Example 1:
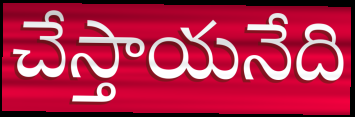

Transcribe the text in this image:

చేస్తాయనేది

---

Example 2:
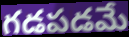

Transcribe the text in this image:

గడపడమే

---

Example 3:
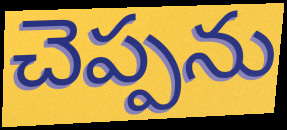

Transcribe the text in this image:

చెప్పను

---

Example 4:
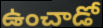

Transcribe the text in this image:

ఉంచాడో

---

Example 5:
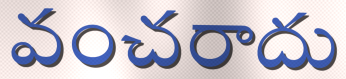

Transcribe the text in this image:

వంచరాదు